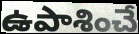
ఉపాశించే